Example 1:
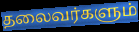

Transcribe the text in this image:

தலைவர்களும்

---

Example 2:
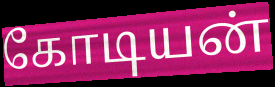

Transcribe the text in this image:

கோடியன்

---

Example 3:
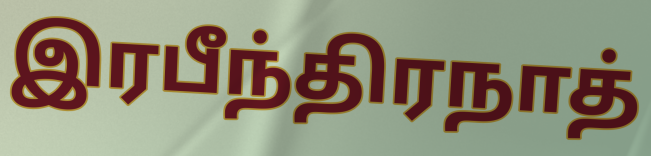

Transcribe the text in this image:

இரபீந்திரநாத்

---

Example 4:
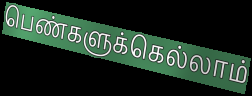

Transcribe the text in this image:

பெண்களுக்கெல்லாம்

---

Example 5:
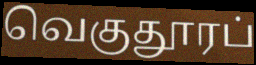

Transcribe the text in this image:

வெகுதூரப்